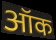
ऑक